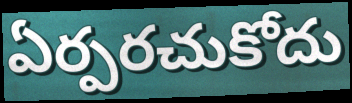
ఏర్పరచుకోదు